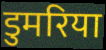
डुमरिया